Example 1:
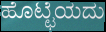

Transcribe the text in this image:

ಹೊಟ್ಟೆಯದು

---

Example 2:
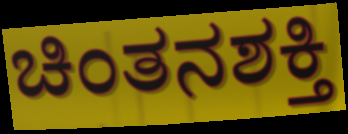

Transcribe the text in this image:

ಚಿಂತನಶಕ್ತಿ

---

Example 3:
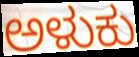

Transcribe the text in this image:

ಅಳುಕು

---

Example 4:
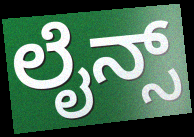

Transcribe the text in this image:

ಲೈನ್ಸ್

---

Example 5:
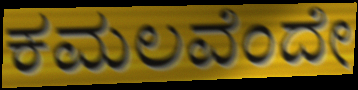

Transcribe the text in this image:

ಕಮಲವೆಂದೇ